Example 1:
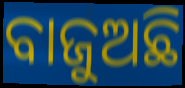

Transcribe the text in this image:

ବାଜୁଅଛି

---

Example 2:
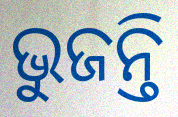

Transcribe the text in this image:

ଭୁଜନ୍ତି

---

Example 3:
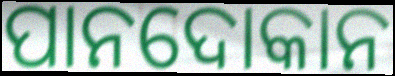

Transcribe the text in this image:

ପାନଦୋକାନ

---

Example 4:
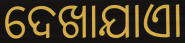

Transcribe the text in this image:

ଦେଖାଯାଏା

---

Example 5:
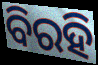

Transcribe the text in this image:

ବିରହି